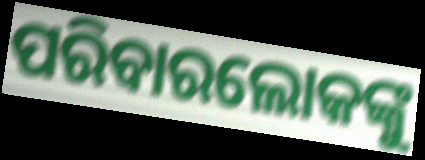
ପରିବାରଲୋକଙ୍କୁ